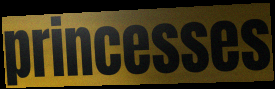
princesses